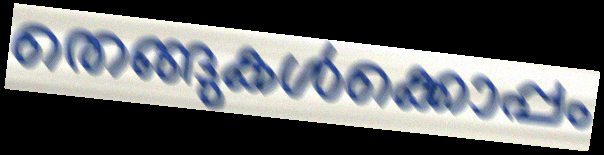
തെങ്ങുകൾക്കൊപ്പം